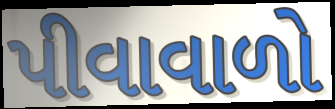
પીવાવાળો